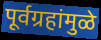
पूर्वग्रहांमुळे